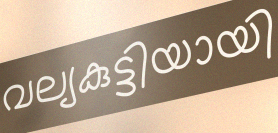
വല്യകുട്ടിയായി